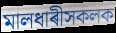
মালধাৰীসকলক